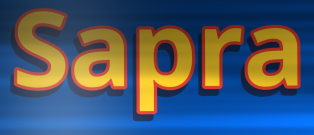
Sapra